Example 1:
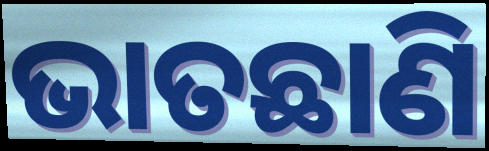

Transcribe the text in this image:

ଭାତଛାଣି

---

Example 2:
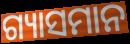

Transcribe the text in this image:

ଗ୍ୟାସମାନ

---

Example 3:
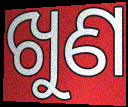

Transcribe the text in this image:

ଖୁଣ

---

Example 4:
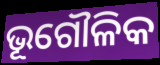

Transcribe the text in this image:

ଭୂଗୌଳିକ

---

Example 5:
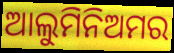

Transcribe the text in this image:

ଆଲୁମିନିଅମର